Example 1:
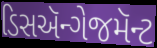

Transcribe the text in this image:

ડિસઍન્ગેજમૅન્ટ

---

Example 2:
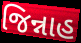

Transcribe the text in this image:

જિન્નાહ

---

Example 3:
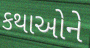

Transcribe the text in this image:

કથાઓને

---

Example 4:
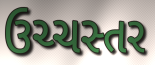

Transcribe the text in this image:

ઉચ્ચસ્તર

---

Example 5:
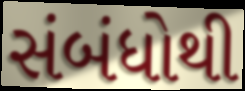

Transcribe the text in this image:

સંબંધોથી